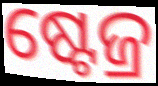
ଷ୍ଟେଜ୍ର